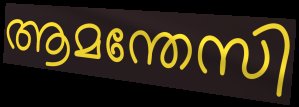
ആമന്തേസി